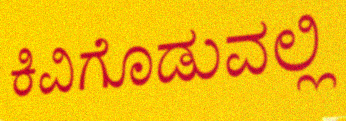
ಕಿವಿಗೊಡುವಲ್ಲಿ